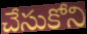
చేసుకోని